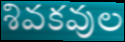
శివకవుల